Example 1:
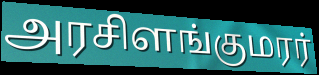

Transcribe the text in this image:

அரசிளங்குமரர்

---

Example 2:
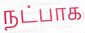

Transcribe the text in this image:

நட்பாக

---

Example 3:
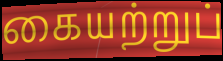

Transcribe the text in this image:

கையற்றுப்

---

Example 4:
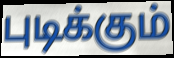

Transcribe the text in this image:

புடிக்கும்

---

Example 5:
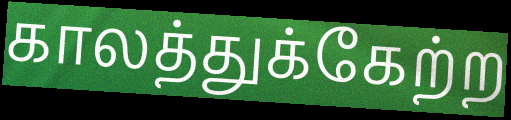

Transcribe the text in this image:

காலத்துக்கேற்ற